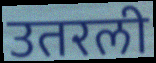
उतरली